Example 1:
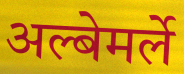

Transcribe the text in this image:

अल्बेमर्ले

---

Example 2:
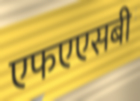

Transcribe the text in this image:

एफएएसबी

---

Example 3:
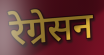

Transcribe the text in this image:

रेग्रेसन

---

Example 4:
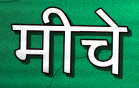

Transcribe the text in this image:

मीचे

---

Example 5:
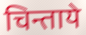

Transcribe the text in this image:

चिन्ताये